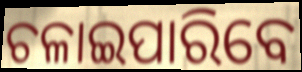
ଚଳାଇପାରିବେ